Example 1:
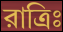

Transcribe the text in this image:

রাত্রিঃ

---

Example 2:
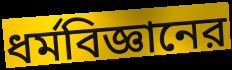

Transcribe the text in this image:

ধর্মবিজ্ঞানের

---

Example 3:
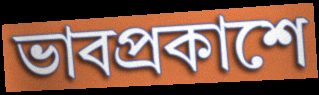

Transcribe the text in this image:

ভাবপ্রকাশে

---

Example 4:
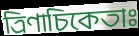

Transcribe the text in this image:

ত্রিণাচিকেতাঃ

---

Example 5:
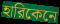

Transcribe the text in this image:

হারিকেনে